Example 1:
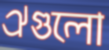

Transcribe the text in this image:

ঐগুলো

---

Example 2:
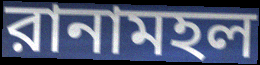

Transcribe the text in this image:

রানামহল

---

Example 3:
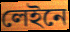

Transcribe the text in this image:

লেইনে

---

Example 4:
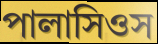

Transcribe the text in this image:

পালাসিওস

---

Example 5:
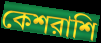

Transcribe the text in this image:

কেশরাশি